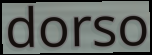
dorso